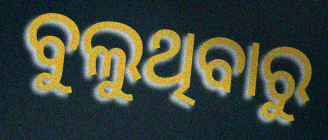
ବୁଲୁଥିବାରୁ